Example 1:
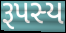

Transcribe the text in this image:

રૂપસ્ય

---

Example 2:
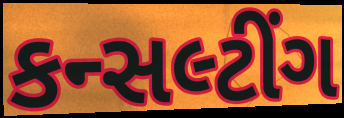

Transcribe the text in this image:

કન્સલ્ટીંગ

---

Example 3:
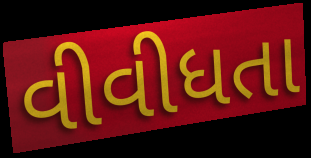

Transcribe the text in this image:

વીવીધતા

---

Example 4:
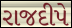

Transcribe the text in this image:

રાજદીપે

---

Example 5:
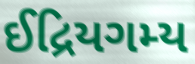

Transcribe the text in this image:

ઈદ્રિયગમ્ય